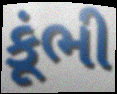
કૂંભી